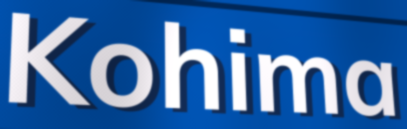
Kohima